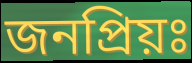
জনপ্রিয়ঃ